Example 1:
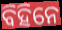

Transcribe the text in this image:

ବିହିନେ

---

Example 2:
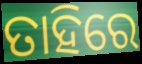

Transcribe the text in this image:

ତାହିରେ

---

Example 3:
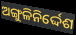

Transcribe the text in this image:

ଅଙ୍ଗୁଳିନିର୍ଦ୍ଦେଶ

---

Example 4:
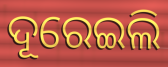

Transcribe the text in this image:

ଦୂରେଇଲି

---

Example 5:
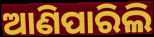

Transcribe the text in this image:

ଆଣିପାରିଲି